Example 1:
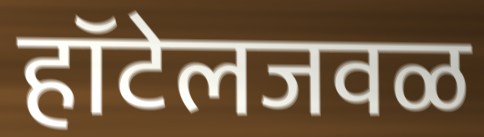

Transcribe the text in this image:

हॉटेलजवळ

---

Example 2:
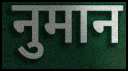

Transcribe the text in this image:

नुमान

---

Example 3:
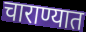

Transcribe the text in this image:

चाराण्यात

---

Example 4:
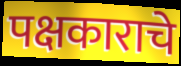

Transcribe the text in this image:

पक्षकाराचे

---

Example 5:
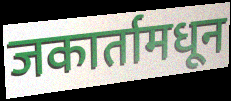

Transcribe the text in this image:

जकार्तामधून